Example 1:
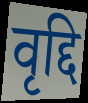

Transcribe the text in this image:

वृद्दि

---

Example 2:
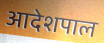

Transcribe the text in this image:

आदेशपाल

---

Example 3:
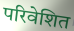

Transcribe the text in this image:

परिवेशित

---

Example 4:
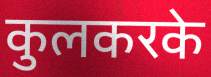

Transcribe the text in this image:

कुलकरके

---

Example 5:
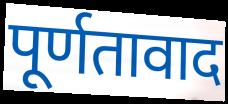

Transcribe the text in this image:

पूर्णतावाद